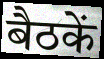
बैठकें